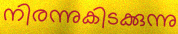
നിരന്നുകിടക്കുന്നു